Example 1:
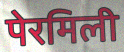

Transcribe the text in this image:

पेरमिली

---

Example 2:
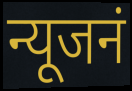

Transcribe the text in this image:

न्यूजनं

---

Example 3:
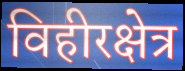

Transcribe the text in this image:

विहीरक्षेत्र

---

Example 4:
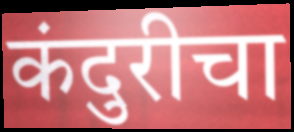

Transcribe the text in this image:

कंदुरीचा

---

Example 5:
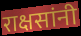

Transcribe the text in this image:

राक्षसांनी